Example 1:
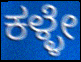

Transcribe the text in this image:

ಕಳ್ಳೇ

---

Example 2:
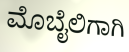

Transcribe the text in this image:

ಮೊಬೈಲಿಗಾಗಿ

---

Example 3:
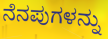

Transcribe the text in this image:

ನೆನಪುಗಳನ್ನು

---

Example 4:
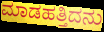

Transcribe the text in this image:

ಮಾಡಹತ್ತಿದನು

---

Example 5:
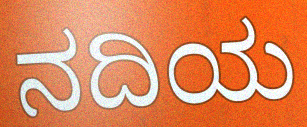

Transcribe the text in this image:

ನದಿಯ